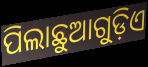
ପିଲାଛୁଆଗୁଡ଼ିଏ